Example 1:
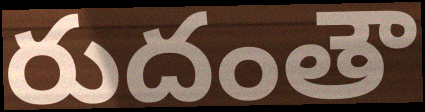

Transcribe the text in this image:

రుదంతౌ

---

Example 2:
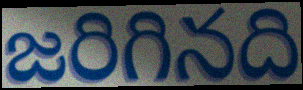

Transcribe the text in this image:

జరిగినది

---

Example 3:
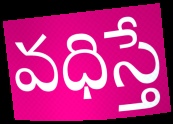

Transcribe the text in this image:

వధిస్తే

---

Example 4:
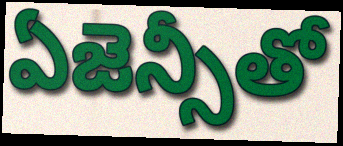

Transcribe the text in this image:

ఏజెన్సీతో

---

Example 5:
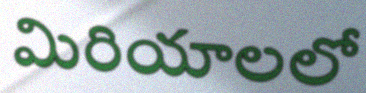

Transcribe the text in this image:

మిరియాలలో